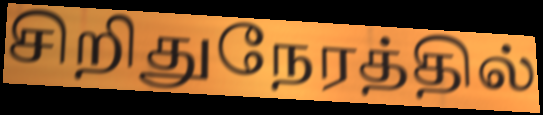
சிறிதுநேரத்தில்